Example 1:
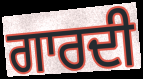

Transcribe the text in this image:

ਗਾਰਦੀ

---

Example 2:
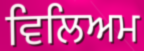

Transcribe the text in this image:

ਵਿਲਿਅਮ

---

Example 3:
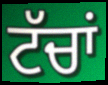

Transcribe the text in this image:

ਟੱਚਾਂ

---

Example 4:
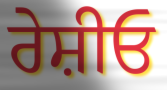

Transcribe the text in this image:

ਰੇਸ਼ੀਓ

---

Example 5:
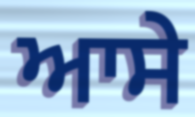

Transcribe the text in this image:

ਆਸੇ